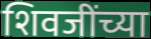
शिवजींच्या